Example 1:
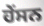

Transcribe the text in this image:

ਹੇਂਸਨ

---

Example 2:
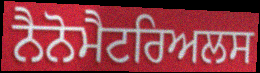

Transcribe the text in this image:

ਨੈਨੋਮੈਟਰਿਅਲਸ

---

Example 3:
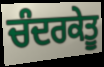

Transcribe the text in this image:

ਚੰਦਰਕੇਤੂ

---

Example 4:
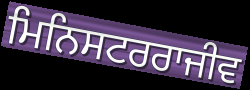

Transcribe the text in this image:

ਮਿਨਿਸਟਰਰਾਜੀਵ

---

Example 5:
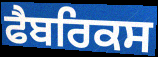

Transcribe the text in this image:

ਫੈਬਰਿਕਸ